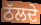
ਠੱਲਦੇ